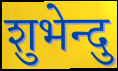
शुभेन्दु